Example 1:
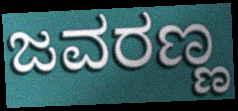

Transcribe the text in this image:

ಜವರಣ್ಣ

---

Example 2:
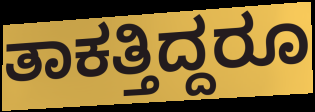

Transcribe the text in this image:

ತಾಕತ್ತಿದ್ದರೂ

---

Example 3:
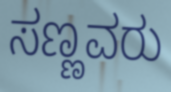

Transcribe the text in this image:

ಸಣ್ಣವರು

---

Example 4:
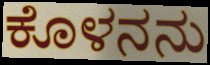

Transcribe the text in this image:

ಕೊಳನನು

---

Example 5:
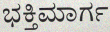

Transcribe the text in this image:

ಭಕ್ತಿಮಾರ್ಗ